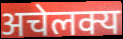
अचेलक्य